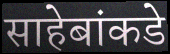
साहेबांकडे